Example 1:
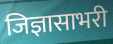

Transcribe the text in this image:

जिज्ञासाभरी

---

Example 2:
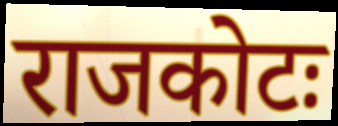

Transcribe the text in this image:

राजकोटः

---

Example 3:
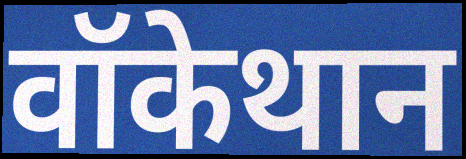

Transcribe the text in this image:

वॉकेथान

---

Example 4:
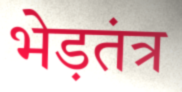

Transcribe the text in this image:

भेड़तंत्र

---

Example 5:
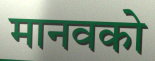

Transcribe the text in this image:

मानवको